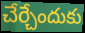
చేర్చేందుకు